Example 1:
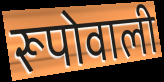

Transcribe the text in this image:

रूपोवाली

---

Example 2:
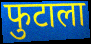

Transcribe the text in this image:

फुटाला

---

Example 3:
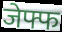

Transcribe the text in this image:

जेफ्फ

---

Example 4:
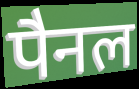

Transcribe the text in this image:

पैनल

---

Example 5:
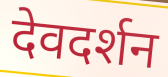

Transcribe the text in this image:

देवदर्शन